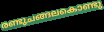
രണ്ടുചങ്ങലകൊണ്ടു